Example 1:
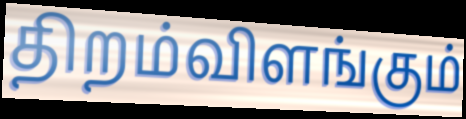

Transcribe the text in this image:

திறம்விளங்கும்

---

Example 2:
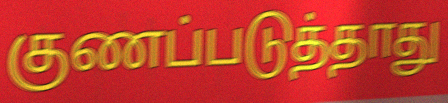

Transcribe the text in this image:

குணப்படுத்தாது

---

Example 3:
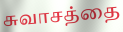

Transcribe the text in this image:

சுவாசத்தை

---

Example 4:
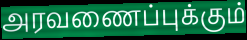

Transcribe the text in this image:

அரவணைப்புக்கும்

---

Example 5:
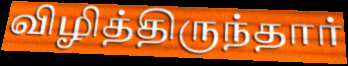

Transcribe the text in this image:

விழித்திருந்தார்